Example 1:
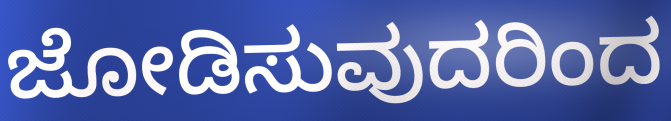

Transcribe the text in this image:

ಜೋಡಿಸುವುದರಿಂದ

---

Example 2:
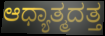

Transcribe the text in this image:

ಆಧ್ಯಾತ್ಮದತ್ತ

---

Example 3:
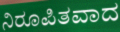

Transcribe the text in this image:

ನಿರೂಪಿತವಾದ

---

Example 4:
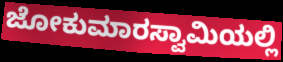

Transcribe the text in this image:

ಜೋಕುಮಾರಸ್ವಾಮಿಯಲ್ಲಿ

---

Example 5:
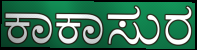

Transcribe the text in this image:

ಕಾಕಾಸುರ